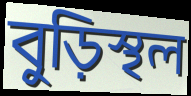
বুড়িস্থল